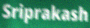
Sriprakash